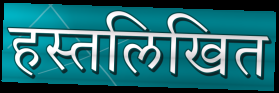
हस्तलिखित